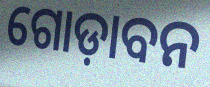
ଗୋଡ଼ାବନ